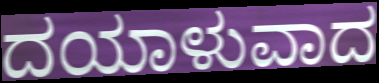
ದಯಾಳುವಾದ